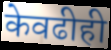
केवढीही